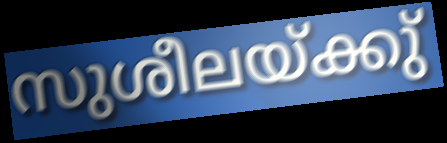
സുശീലയ്ക്കു്